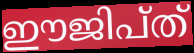
ഈജിപ്ത്